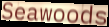
Seawoods